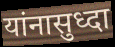
यांनासुध्दा